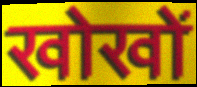
खोखों